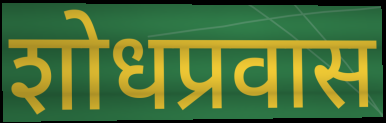
शोधप्रवास